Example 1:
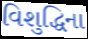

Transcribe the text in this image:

વિશુદ્ધિના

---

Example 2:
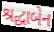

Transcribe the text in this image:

શ્રદ્ધાબેન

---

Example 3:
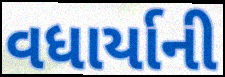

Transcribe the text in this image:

વધાર્યાની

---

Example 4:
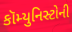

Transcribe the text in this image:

કૉમ્યુનિસ્ટોની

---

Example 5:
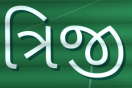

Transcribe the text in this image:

ત્રિજી